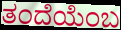
ತಂದೆಯೆಂಬ